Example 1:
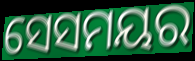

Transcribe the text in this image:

ସେସମୟର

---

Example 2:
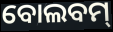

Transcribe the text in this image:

ବୋଲବମ୍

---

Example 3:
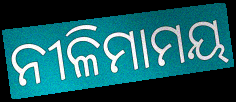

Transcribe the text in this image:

ନୀଳିମାମୟ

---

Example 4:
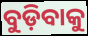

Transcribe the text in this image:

ବୁଡ଼ିବାକୁ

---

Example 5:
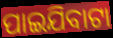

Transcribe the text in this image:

ପାଇଯିବାଟା